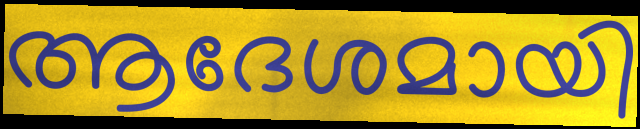
ആദേശമായി